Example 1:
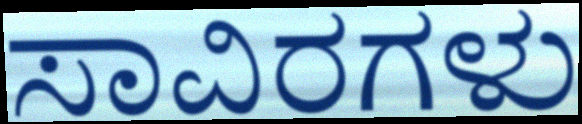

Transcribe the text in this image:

ಸಾವಿರಗಳು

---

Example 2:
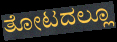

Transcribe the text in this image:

ತೋಟದಲ್ಲೂ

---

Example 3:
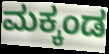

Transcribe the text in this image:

ಮಕ್ಕಂಡ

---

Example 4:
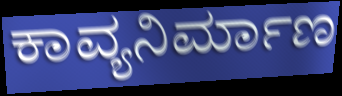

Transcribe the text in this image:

ಕಾವ್ಯನಿರ್ಮಾಣ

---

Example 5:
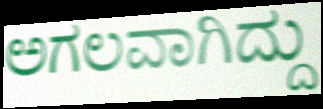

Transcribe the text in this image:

ಅಗಲವಾಗಿದ್ದು